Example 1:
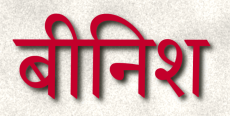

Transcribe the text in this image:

बीनिश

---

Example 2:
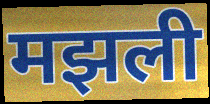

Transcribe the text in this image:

मझली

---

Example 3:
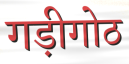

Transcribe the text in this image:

गड़ीगोठ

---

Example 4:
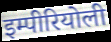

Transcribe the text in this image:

इम्पीरियोली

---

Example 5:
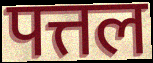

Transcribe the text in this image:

पत्तल